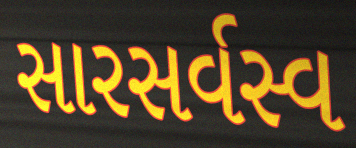
સારસર્વસ્વ